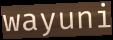
wayuni